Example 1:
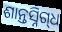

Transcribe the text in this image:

ଶାନ୍ତସ୍ନିଗ୍‌ଧ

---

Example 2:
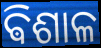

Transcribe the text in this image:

ଵିଶାଳ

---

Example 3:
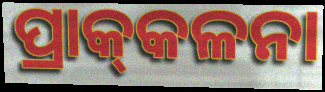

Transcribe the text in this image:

ପ୍ରାକ୍‌କଳନା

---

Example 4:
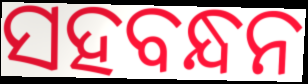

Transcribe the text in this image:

ସହବନ୍ଧନ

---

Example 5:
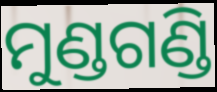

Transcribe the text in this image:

ମୁଣ୍ଡଗଣ୍ଡି